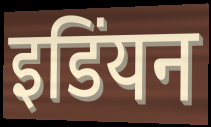
इडिंयन